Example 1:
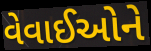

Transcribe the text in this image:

વેવાઈઓને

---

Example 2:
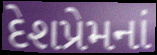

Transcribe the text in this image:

દેશપ્રેમનાં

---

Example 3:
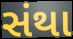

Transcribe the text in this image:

સંથા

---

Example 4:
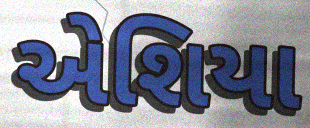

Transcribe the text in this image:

એશિયા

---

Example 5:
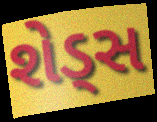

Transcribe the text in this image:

શેડ્સ